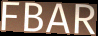
FBAR